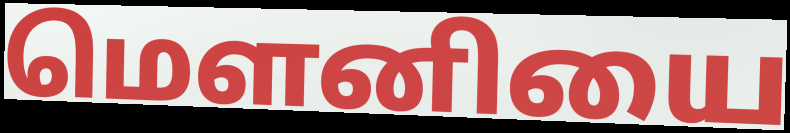
மௌனியை